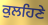
ਕੁਲਹਿਣੇ